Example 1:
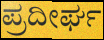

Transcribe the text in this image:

ಪ್ರದೀರ್ಘ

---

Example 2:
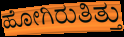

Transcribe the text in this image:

ಹೋಗಿರುತಿತ್ತು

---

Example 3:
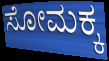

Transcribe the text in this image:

ಸೋಮಕ್ಕ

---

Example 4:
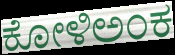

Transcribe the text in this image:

ಕೋಳಿಅಂಕ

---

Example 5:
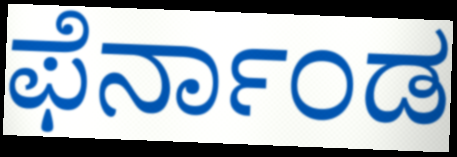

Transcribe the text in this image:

ಫೆರ್ನಾಂಡ